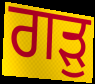
ਗੜੁ